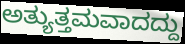
ಅತ್ಯುತ್ತಮವಾದದ್ದು